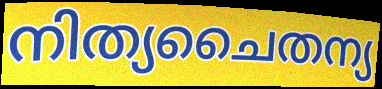
നിത്യചൈതന്യ